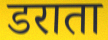
डराता